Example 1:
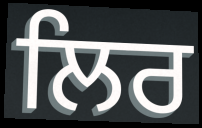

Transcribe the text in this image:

ਲਿਰ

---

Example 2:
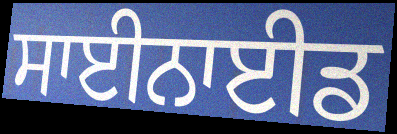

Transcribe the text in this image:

ਸਾਈਨਾਈਡ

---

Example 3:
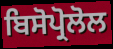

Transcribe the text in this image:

ਬਿਸੋਪ੍ਰੋਲੋਲ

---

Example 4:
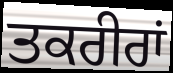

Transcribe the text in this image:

ਤਕਰੀਰਾਂ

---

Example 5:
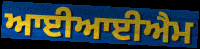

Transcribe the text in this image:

ਆਈਆਈਐਮ